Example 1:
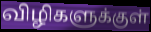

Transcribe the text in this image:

விழிகளுக்குள்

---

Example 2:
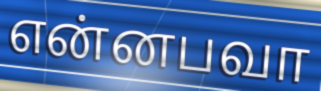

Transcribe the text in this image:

என்னபவா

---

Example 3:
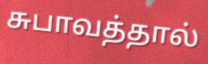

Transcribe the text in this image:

சுபாவத்தால்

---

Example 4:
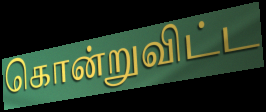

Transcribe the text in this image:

கொன்றுவிட்ட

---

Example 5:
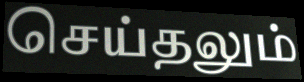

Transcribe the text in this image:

செய்தலும்